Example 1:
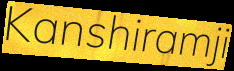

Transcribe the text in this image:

Kanshiramji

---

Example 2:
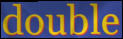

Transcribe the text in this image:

double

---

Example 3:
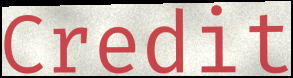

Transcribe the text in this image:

Credit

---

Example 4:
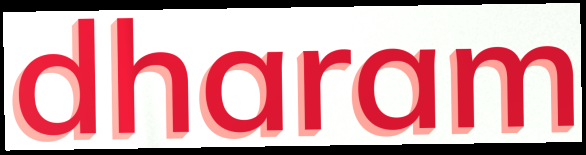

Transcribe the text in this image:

dharam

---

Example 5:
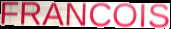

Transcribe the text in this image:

FRANCOIS